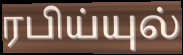
ரபிய்யுல்